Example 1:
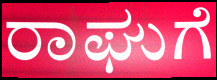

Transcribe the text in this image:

ರಾಘುಗೆ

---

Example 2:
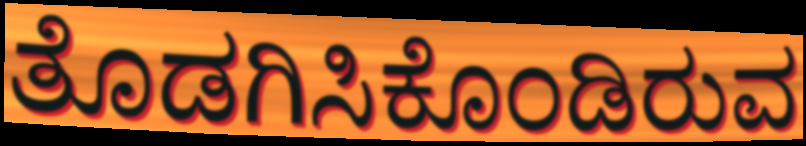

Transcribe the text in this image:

ತೊಡಗಿಸಿಕೊಂಡಿರುವ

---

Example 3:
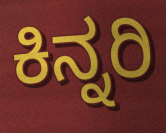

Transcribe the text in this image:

ಕಿನ್ನರಿ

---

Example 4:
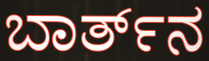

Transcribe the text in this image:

ಬಾರ್ತ್‌ನ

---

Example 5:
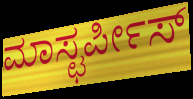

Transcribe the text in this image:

ಮಾಸ್ಟರ್ಪೀಸ್